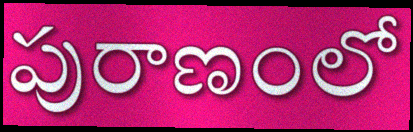
పురాణంలో